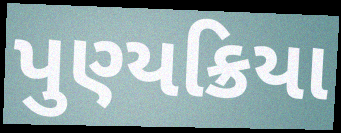
પુણ્યક્રિયા